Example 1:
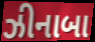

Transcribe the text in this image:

ઝીનાબા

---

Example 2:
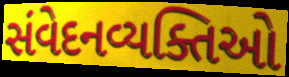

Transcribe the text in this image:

સંવેદનવ્યક્તિઓ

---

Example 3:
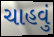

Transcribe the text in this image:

ચાહવું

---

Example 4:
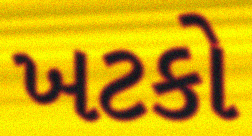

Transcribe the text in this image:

ખટકો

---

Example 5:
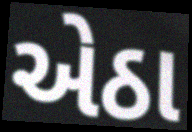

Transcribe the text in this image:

એઠા